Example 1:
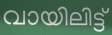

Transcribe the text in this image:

വായിലിട്ട്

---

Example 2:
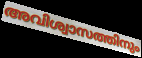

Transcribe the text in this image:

അവിശ്വാസത്തിനും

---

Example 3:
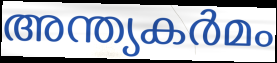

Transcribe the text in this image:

അന്ത്യകർമം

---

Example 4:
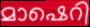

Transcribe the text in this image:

മാഷെറി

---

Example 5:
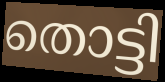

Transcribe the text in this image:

തൊട്ടി